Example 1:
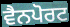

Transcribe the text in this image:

ਵੈਨਪੋਰਟ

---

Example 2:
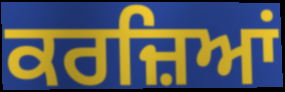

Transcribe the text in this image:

ਕਰਜ਼ਿਆਂ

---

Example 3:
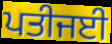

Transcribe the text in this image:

ਪਤੀਜਈ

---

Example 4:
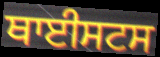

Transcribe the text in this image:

ਥਾਈਸਟਸ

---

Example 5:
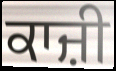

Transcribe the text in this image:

ਕਾਜ਼ੀ